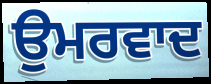
ਉਮਰਵਾਦ